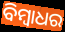
ବିମ୍ବାଧର